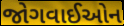
જોગવાઈઓન